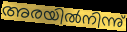
അരയിൽനിന്നു്